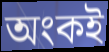
অংকই